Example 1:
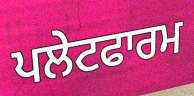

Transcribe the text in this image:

ਪਲੇਟਫਾਰਮ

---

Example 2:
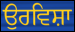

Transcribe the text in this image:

ਉਰਵਿਸ਼ਾ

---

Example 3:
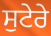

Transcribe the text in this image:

ਸੁਟੇਰੇ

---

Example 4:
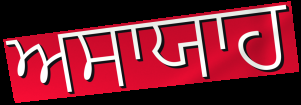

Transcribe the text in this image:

ਅਸਾਯਾਹ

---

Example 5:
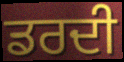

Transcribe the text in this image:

ਡਰਦੀ